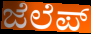
ಜೆಲೆಪ್